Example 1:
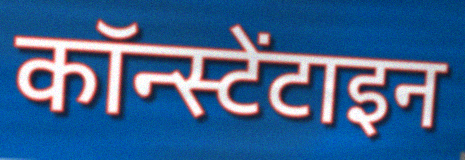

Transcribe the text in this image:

कॉन्स्टेंटाइन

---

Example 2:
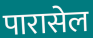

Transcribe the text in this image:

पारासेल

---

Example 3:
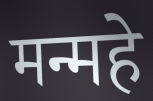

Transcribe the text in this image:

मन्महे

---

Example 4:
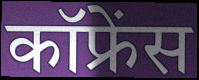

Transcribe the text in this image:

कॉफ्रेंस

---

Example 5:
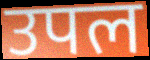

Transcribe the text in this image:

उपल